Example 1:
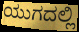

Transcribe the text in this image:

ಯುಗದಲ್ಲಿ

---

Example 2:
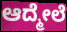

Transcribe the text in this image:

ಆದ್ಮೇಲೆ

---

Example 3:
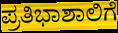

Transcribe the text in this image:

ಪ್ರತಿಭಾಶಾಲಿಗೆ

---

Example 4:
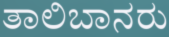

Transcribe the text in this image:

ತಾಲಿಬಾನರು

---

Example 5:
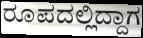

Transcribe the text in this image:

ರೂಪದಲ್ಲಿದ್ದಾಗ